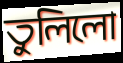
তুলিলো